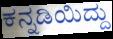
ಕನ್ನಡಿಯಿದ್ದು